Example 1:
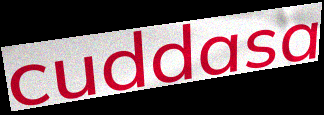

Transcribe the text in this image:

cuddasa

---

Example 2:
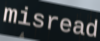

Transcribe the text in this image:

misread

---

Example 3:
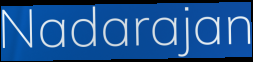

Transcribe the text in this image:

Nadarajan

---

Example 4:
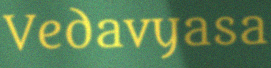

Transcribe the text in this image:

Vedavyasa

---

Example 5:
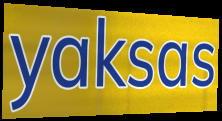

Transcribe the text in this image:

yaksas